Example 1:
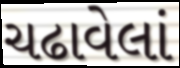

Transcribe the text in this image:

ચઢાવેલાં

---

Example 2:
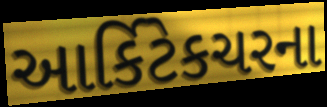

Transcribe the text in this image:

આર્કિટેકચરના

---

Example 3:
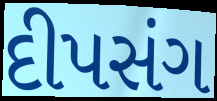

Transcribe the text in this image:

દીપસંગ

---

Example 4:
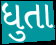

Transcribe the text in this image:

ધુતા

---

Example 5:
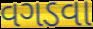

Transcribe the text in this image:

વગડવા